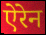
ऐरेन